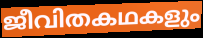
ജീവിതകഥകളും